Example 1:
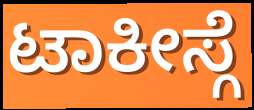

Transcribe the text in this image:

ಟಾಕೀಸ್ಗೆ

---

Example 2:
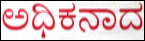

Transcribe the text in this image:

ಅಧಿಕನಾದ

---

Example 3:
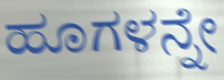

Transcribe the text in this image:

ಹೂಗಳನ್ನೇ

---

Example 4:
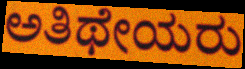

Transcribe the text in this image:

ಅತಿಥೇಯರು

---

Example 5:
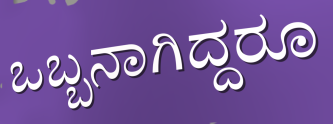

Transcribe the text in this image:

ಒಬ್ಬನಾಗಿದ್ದರೂ